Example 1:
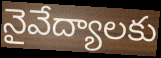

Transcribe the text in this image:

నైవేద్యాలకు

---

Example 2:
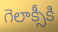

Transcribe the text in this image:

గెలాక్సీకి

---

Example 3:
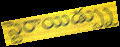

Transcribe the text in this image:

స్టెరాయిడ్స్ను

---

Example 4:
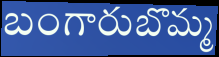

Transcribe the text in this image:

బంగారుబొమ్మ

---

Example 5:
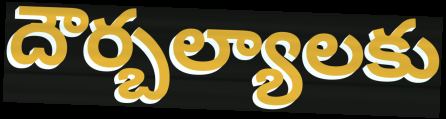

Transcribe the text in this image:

దౌర్బల్యాలకు